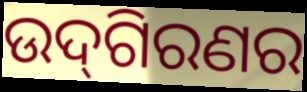
ଉଦ୍‌ଗିରଣର